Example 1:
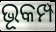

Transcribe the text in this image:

ଭୂକମ୍ପ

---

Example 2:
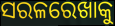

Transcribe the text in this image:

ସରଳରେଖାକୁ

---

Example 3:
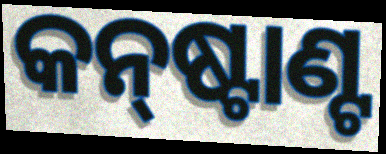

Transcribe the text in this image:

କନ୍‌ଷ୍ଟାଣ୍ଟ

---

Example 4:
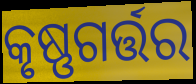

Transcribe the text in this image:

କୃଷ୍ଣଗର୍ତ୍ତର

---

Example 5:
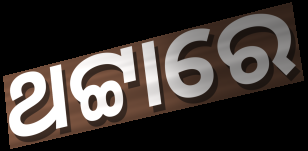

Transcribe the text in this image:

ଥଟ୍ଟାରେ